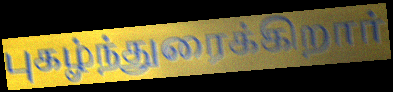
புகழ்ந்துரைக்கிறார்